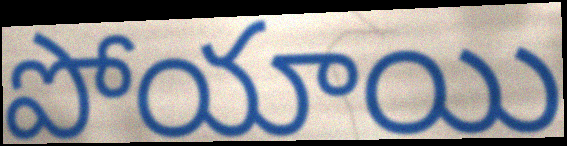
పోయాయి